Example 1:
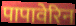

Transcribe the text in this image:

पापावेरिन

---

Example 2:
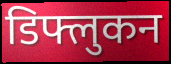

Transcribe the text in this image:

डिफ्लुकन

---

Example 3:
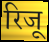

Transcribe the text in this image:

रिजू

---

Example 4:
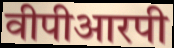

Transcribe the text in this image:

वीपीआरपी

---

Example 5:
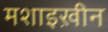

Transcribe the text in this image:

मशाइख़ीन